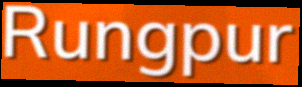
Rungpur